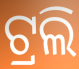
ଟ୍ରଲି